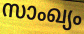
സാംഖ്യം